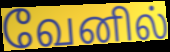
வேனில்